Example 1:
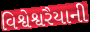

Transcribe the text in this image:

વિશ્વેશ્વરૈયાની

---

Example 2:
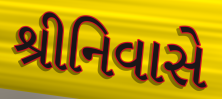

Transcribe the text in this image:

શ્રીનિવાસે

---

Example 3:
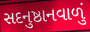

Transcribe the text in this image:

સદનુષ્ઠાનવાળું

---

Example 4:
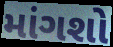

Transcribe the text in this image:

માંગશો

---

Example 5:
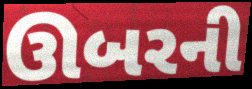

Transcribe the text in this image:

ઊબરની